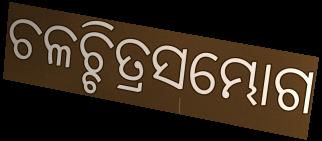
ଚଳଚ୍ଚିତ୍ରସମ୍ଭୋଗ